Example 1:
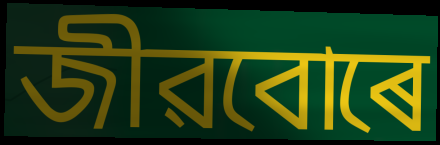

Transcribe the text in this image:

জীৱবোৰে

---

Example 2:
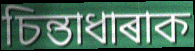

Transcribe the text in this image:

চিন্তাধাৰাক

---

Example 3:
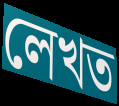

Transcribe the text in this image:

লেখত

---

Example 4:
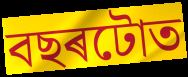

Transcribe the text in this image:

বছৰটোত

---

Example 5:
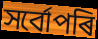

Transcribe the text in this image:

সৰ্বোপৰি